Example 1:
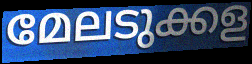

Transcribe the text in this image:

മേലടുക്കള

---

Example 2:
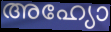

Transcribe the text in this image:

അഹ്യോ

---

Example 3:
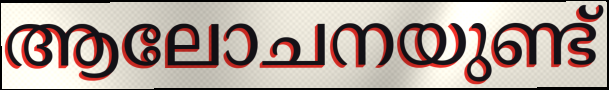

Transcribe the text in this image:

ആലോചനയുണ്ട്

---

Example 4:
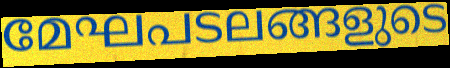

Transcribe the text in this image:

മേഘപടലങ്ങളുടെ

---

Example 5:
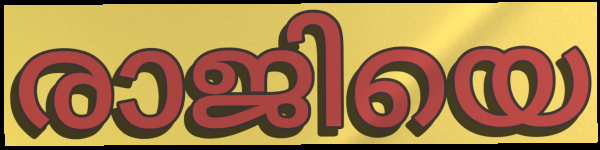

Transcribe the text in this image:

രാജിയെ